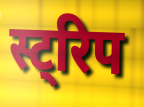
स्ट्रिप